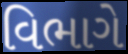
વિભાગે